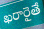
ఖరారైతే